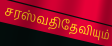
சரஸ்வதிதேவியும்